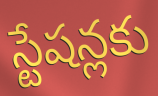
స్టేషన్లకు